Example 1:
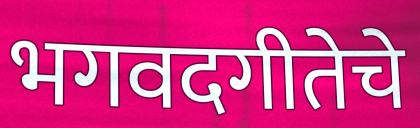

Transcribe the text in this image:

भगवदगीतेचे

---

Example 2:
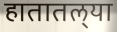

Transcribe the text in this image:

हातातल्या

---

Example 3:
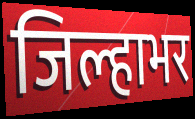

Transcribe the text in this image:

जिल्हाभर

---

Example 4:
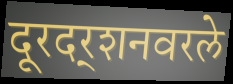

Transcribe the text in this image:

दूरदर्शनवरले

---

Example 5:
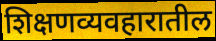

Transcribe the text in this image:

शिक्षणव्यवहारातील